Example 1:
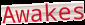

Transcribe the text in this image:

Awakes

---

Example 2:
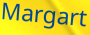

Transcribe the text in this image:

Margart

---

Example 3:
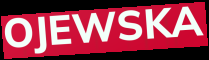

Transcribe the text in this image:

OJEWSKA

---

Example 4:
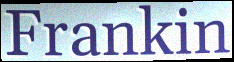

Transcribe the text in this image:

Frankin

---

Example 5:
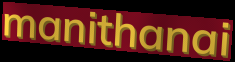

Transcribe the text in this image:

manithanai